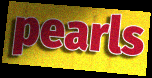
pearls